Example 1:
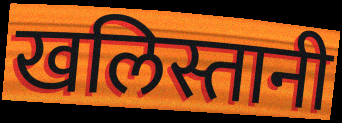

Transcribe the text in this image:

खलिस्तानी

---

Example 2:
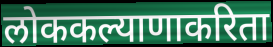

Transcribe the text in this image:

लोककल्याणाकरिता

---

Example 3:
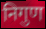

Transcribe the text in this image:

निगुण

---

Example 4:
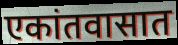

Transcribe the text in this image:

एकांतवासात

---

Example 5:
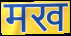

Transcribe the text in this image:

मख